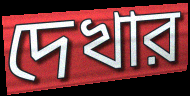
দেখার